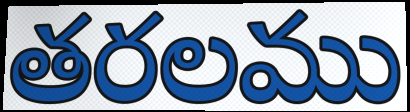
తరలము